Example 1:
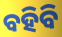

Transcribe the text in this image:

ବହିବି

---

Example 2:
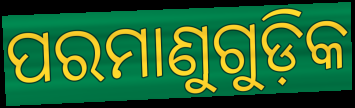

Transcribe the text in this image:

ପରମାଣୁଗୁଡ଼ିକ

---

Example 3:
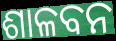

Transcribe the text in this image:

ଶାଳବନ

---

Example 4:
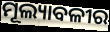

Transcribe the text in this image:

ମୂଲ୍ୟାବଳୀର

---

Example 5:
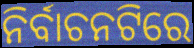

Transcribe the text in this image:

ନିର୍ବାଚନଟିରେ